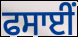
ਫਸਾਈਂ